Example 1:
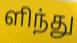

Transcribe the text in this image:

ளிந்து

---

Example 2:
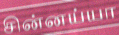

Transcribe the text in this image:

சின்னய்யா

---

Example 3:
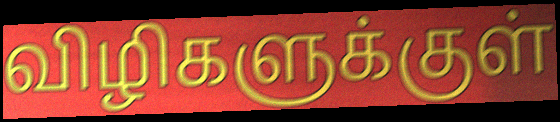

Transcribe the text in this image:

விழிகளுக்குள்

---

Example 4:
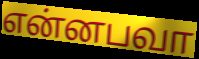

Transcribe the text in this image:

என்னபவா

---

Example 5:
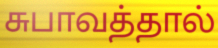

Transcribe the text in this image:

சுபாவத்தால்